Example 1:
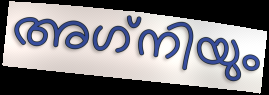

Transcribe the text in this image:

അഗ്‌നിയും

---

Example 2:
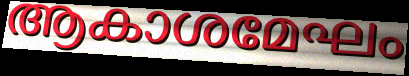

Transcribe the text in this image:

ആകാശമേഘം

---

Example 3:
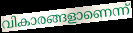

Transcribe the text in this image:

വികാരങ്ങളാണെന്ന്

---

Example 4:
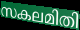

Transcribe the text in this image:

സകലമിതി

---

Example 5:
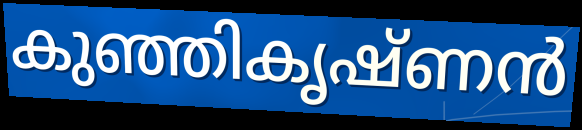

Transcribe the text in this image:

കുഞ്ഞികൃഷ്ണൻ